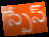
స్పేస్